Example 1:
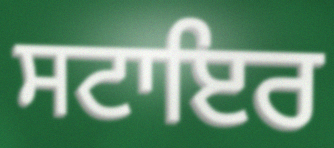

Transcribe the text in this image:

ਸਟਾਇਰ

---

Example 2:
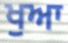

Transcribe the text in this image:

ਖੁਆ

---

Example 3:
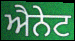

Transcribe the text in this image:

ਐਨੇਟ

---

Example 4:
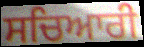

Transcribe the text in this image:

ਸਚਿਆਰੀ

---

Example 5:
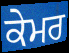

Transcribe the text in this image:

ਕੇਮਰ